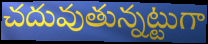
చదువుతున్నట్టుగా